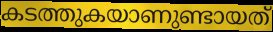
കടത്തുകയാണുണ്ടായത്